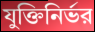
যুক্তিনির্ভর